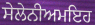
ਸੇਲੇਨੀਅਮਇਹ